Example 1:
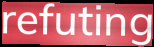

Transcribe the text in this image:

refuting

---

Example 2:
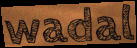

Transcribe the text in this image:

wadal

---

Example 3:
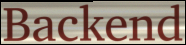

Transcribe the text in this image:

Backend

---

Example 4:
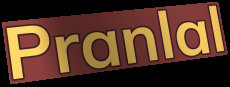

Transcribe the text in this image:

Pranlal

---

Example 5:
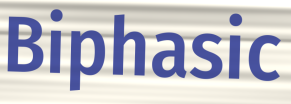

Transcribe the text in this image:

Biphasic